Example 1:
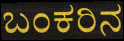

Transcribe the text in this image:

ಬಂಕರಿನ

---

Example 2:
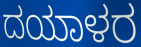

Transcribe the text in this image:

ದಯಾಳರ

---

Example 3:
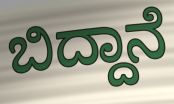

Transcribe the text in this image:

ಬಿದ್ದಾನೆ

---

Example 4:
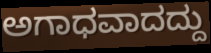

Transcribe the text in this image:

ಅಗಾಧವಾದದ್ದು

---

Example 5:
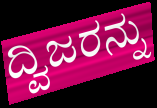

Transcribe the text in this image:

ದ್ವಿಜರನ್ನು